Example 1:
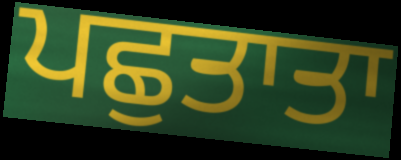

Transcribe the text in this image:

ਪਛੁਤਾਤਾ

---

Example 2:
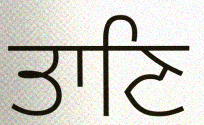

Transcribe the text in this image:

ਤਾਣਿ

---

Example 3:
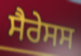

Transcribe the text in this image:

ਸੈਰੇਸਸ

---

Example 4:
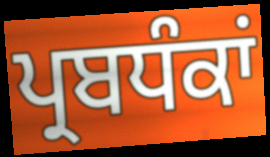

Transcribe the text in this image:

ਪ੍ਰਬਧੰਕਾਂ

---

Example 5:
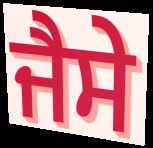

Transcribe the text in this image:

ਜੈਸੇ